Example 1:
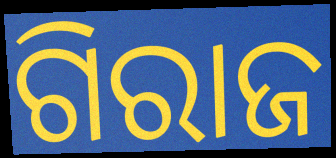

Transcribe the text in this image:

ଗିରାଜ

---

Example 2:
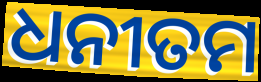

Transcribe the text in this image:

ଧନୀତମ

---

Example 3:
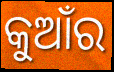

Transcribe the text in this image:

କୁଆଁର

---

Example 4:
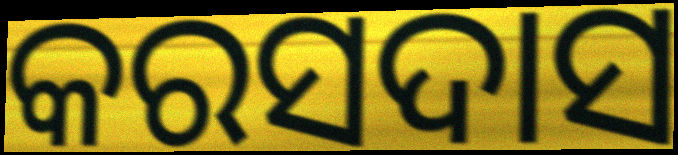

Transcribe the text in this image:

କରସଦାସ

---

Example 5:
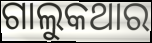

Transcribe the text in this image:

ଗାଲୁକଥାର